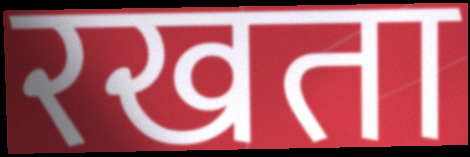
रखता